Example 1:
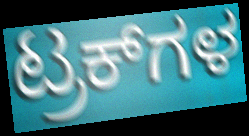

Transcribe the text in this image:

ಟ್ರಕ್‌ಗಳ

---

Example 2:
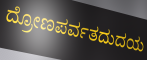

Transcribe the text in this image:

ದ್ರೋಣಪರ್ವತದುದಯ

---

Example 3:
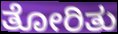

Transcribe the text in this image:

ತೋರಿತು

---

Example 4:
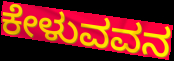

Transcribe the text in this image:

ಕೇಳುವವನ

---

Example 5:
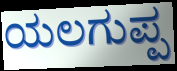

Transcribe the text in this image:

ಯಲಗುಪ್ಪ